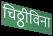
चिठ्ठीविना